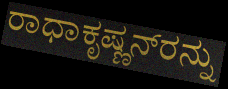
ರಾಧಾಕೃಷ್ಣನ್‌ರನ್ನು